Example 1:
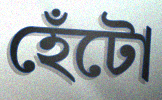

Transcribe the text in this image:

হেঁটো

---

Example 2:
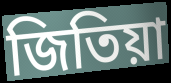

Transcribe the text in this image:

জিতিয়া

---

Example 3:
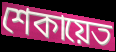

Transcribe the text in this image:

শেকায়েত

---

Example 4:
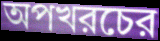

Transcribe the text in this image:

অপখরচের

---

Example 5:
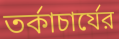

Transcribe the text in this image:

তর্কাচার্যের